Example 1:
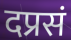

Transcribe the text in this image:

दप्रसं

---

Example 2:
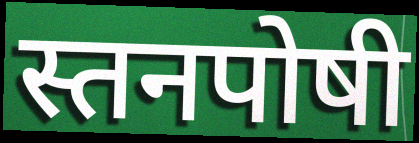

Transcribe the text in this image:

स्तनपोषी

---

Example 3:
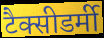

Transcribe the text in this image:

टैक्सीडर्मी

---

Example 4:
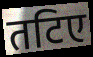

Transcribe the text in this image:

तटिए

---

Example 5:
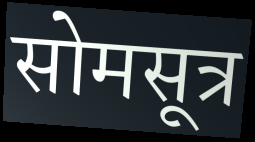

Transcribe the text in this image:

सोमसूत्र